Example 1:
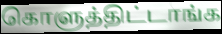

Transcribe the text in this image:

கொளுத்திட்டாங்க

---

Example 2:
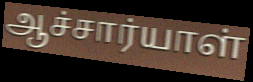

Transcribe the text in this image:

ஆச்சார்யாள்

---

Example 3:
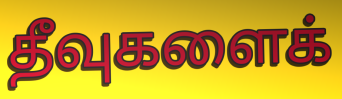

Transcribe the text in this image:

தீவுகளைக்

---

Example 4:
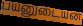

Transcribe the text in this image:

பயனுடையன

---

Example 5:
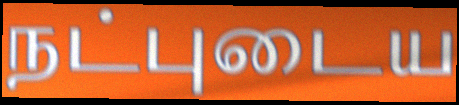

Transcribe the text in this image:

நட்புடைய